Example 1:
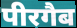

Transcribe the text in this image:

पीरगैब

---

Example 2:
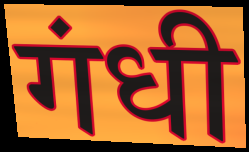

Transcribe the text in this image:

गंधी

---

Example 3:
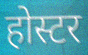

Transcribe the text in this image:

होस्टर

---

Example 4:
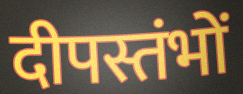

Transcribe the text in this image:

दीपस्तंभों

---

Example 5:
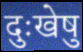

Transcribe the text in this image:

दुःखेषु